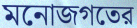
মনোজগতের